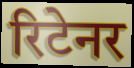
रिटेनर